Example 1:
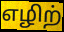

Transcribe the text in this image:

எழிற்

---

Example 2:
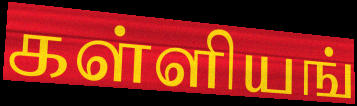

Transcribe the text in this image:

கள்ளியங்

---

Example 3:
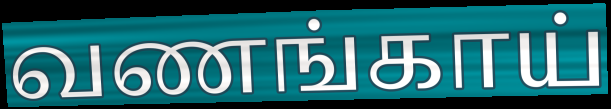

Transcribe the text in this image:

வணங்காய்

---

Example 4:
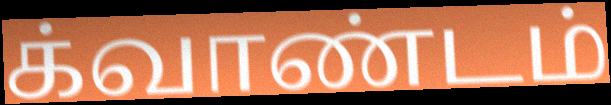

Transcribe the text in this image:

க்வாண்டம்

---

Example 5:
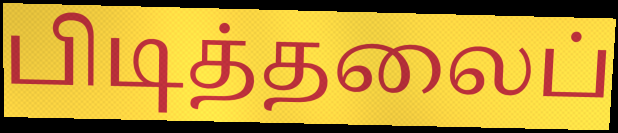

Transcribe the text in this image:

பிடித்தலைப்